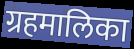
ग्रहमालिका